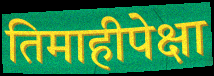
तिमाहीपेक्षा